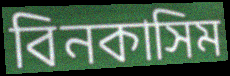
বিনকাসিম